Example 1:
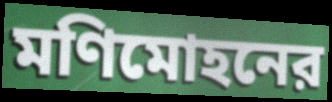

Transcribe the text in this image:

মণিমোহনের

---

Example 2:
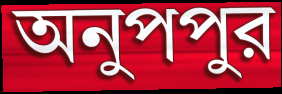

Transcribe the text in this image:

অনুপপুর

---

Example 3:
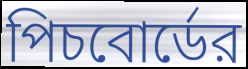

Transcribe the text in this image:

পিচবোর্ডের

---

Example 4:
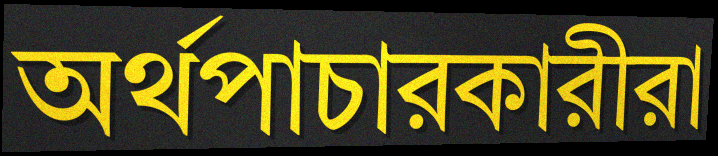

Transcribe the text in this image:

অর্থপাচারকারীরা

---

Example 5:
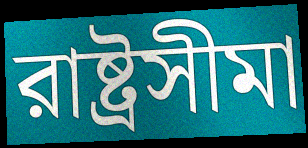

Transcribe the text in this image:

রাষ্ট্রসীমা